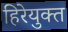
हिरेयुक्त